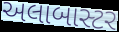
અલાબાસ્ટર